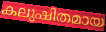
കലുഷിതമായ